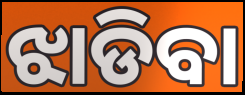
ଝାଡିବା